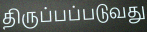
திருப்பப்படுவது